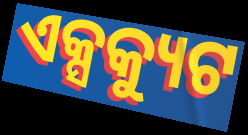
ଏକ୍ସକ୍ୟୁଟ